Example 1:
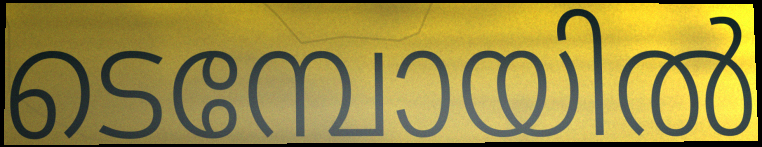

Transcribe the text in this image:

ടെമ്പോയിൽ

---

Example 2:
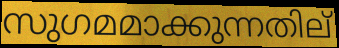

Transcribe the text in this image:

സുഗമമാക്കുന്നതില്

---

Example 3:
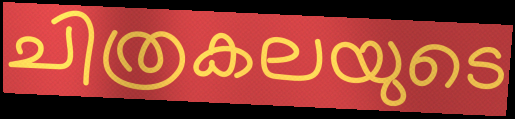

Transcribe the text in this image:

ചിത്രകലയുടെ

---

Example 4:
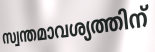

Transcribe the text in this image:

സ്വന്തമാവശ്യത്തിന്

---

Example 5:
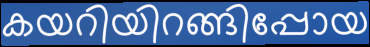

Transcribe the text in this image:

കയറിയിറങ്ങിപ്പോയ